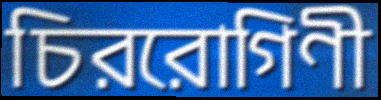
চিররোগিণী